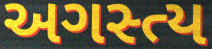
અગસ્ત્ય